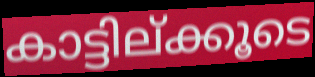
കാട്ടില്ക്കൂടെ